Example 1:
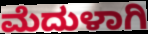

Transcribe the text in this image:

ಮೆದುಳಾಗಿ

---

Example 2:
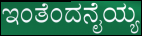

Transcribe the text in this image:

ಇಂತೆಂದನೈಯ್ಯ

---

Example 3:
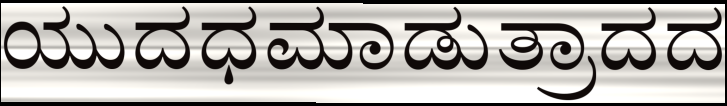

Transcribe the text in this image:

ಯುದಧಮಾಡುತ್ರಾದದ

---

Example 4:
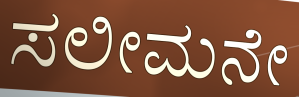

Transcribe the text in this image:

ಸಲೀಮನೇ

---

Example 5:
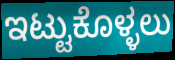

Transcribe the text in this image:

ಇಟ್ಟುಕೊಳ್ಳಲು